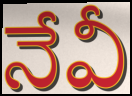
నేవీ